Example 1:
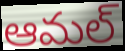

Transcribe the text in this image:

ఆమల్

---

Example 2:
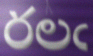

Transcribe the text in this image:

రలఁ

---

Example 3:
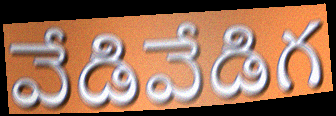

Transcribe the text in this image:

వేడివేడిగ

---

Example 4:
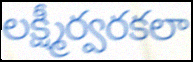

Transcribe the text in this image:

లక్ష్మీర్వరకలా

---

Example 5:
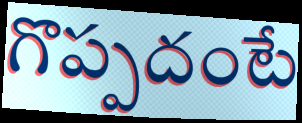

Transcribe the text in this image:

గొప్పదంటే